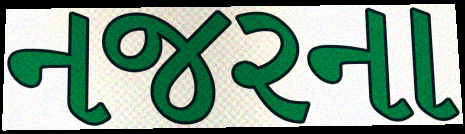
નજરના